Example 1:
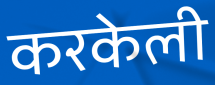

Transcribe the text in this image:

करकेली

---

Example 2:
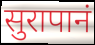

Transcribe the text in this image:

सुरापानं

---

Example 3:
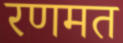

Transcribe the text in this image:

रणमत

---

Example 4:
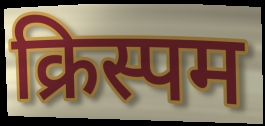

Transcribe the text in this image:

क्रिस्पम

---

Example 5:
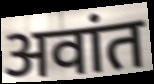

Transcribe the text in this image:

अवांत